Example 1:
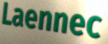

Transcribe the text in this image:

Laennec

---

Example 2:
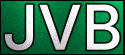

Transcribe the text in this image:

JVB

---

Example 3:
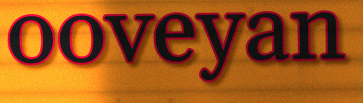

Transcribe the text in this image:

ooveyan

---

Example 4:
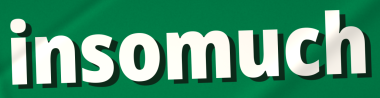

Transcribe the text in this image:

insomuch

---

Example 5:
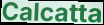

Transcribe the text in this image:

Calcatta